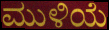
ಮುಳಿಯೆ